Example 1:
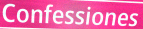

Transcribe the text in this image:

Confessiones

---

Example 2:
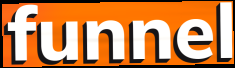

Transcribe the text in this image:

funnel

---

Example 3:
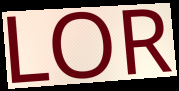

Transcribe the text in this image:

LOR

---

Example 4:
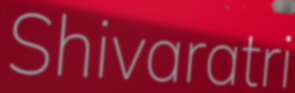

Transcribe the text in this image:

Shivaratri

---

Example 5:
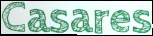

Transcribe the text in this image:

Casares